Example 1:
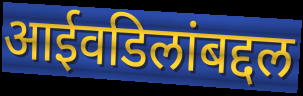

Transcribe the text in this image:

आईवडिलांबद्दल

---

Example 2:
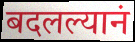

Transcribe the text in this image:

बदलल्यानं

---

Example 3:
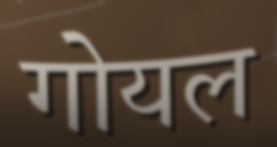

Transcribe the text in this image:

गोयल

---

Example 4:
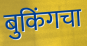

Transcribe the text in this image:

बुकिंगचा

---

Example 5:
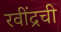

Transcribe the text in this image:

रवींद्रची